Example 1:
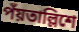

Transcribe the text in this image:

পঁয়তাল্লিশে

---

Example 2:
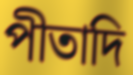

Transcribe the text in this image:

পীতাদি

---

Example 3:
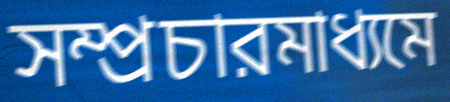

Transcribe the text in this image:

সম্প্রচারমাধ্যমে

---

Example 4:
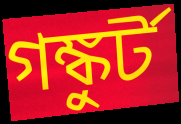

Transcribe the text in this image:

গঙ্কুর্ট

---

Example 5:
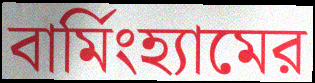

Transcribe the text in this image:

বার্মিংহ্যামের